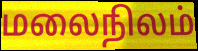
மலைநிலம்